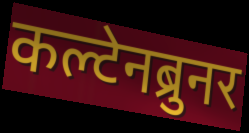
कल्टेनब्रुनर